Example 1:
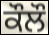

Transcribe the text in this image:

ਕੌਲੌ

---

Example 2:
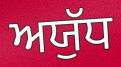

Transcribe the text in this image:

ਅਯੁੱਧ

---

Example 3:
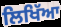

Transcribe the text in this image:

ਲਿਖਿੱਆ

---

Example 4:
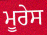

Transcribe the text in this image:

ਮੂਰੇਸ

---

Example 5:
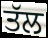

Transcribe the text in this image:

ਤੱਲ